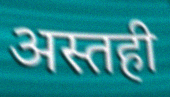
अस्तही